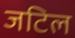
जटिल